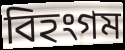
বিহংগম